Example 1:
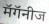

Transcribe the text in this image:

मॅगॅनीज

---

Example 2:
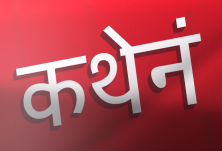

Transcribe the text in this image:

कथेनं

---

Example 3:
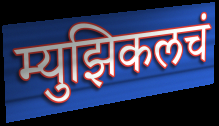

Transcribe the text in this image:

म्युझिकलचं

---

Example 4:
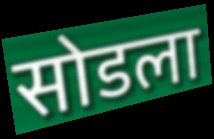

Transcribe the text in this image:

सोडला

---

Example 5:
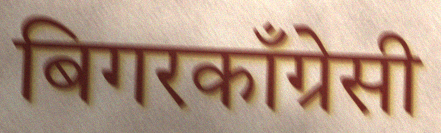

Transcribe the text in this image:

बिगरकाँग्रेसी